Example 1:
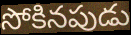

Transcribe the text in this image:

సోకినపుడు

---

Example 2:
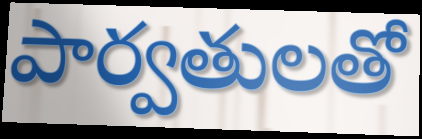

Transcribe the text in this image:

పార్వతులతో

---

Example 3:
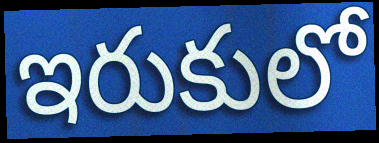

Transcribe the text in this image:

ఇరుకులో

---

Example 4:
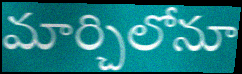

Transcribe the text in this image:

మార్చిలోనూ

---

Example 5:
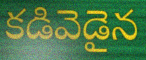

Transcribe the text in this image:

కడివెడైన